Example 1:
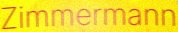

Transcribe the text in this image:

Zimmermann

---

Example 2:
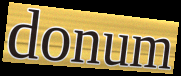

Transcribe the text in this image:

donum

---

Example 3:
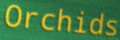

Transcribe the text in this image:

Orchids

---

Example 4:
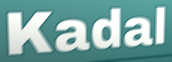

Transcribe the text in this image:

Kadal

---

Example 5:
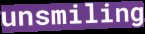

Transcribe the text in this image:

unsmiling